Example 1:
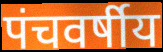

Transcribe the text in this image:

पंचवर्षीय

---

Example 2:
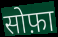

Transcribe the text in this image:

सोफ़ा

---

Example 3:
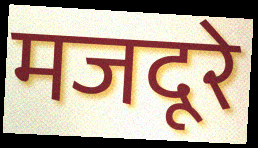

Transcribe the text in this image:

मजदूरे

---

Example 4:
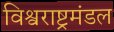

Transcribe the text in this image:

विश्वराष्ट्रमंडल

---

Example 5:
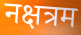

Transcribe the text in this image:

नक्षत्रम